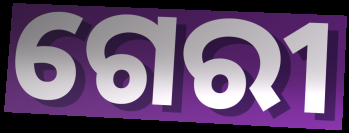
ଗେରୀ